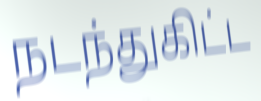
நடந்துகிட்ட